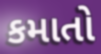
કમાતો